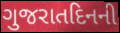
ગુજરાતદિનની